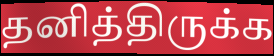
தனித்திருக்க